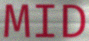
MID